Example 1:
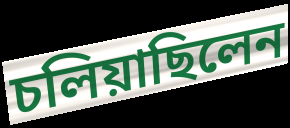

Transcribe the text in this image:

চলিয়াছিলেন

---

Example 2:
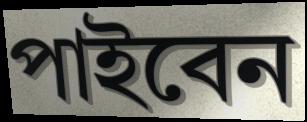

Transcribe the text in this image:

পাইবেন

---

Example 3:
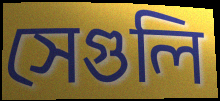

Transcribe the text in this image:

সেগুলি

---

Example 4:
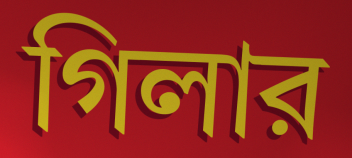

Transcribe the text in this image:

গিলার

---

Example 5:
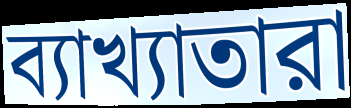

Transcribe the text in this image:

ব্যাখ্যাতারা